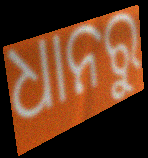
ଧାନରୁ